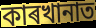
কাৰখানাত